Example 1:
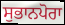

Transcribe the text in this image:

ਸੁਭਾਨਪੋਰਾ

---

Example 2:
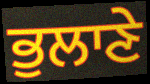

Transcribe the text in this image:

ਭੁਲਾਣੇ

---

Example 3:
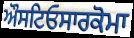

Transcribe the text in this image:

ਔਸਟਿਓਸਾਰਕੋਮਾ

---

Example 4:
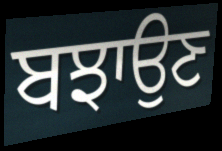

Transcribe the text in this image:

ਬਝਾਉਣ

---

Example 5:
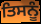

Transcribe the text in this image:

ਤਿਸਨੂੰ